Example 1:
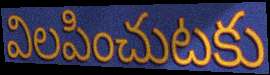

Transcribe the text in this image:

విలపించుటకు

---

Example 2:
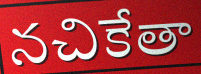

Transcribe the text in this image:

నచికేతా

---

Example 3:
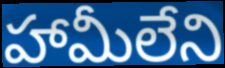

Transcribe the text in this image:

హామీలేని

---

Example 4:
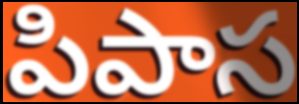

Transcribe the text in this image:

పిపాస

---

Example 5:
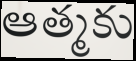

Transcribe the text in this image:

ఆత్మకు